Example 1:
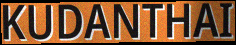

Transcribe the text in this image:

KUDANTHAI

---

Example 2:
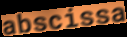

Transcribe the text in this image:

abscissa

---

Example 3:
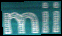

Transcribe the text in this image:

mii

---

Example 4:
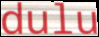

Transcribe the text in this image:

dulu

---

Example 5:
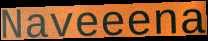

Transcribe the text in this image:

Naveeena